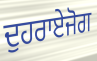
ਦੁਹਰਾਏਜੋਗ